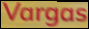
Vargas